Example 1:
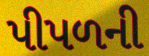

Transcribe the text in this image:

પીપળની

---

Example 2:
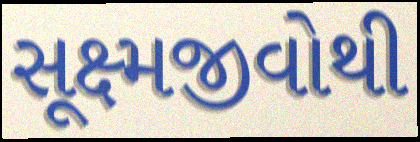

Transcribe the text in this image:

સૂક્ષ્મજીવોથી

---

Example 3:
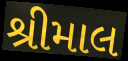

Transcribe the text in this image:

શ્રીમાલ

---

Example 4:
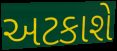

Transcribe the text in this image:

અટકાશે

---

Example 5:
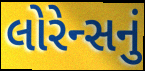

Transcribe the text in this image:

લોરેન્સનું